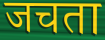
जचता